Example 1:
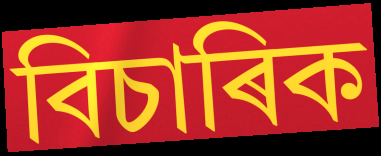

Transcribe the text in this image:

বিচাৰিক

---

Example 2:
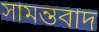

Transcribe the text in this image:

সামন্তবাদ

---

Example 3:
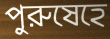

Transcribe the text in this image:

পুৰুষেহে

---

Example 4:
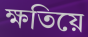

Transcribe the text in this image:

ক্ষতিয়ে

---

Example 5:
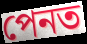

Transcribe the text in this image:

পেনত